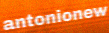
antonionew